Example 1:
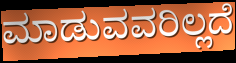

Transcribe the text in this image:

ಮಾಡುವವರಿಲ್ಲದೆ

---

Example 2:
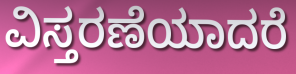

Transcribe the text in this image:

ವಿಸ್ತರಣೆಯಾದರೆ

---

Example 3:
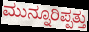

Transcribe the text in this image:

ಮುನ್ನೂರಿಪ್ಪತ್ತು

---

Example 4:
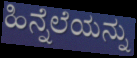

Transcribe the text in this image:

ಹಿನ್ನೆಲೆಯನ್ನು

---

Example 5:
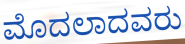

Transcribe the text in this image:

ಮೊದಲಾದವರು